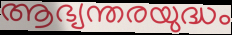
ആഭ്യന്തരയുദ്ധം